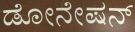
ಡೋನೇಷನ್